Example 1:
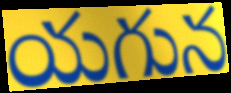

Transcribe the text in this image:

యగున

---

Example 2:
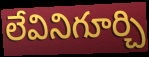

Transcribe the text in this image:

లేవినిగూర్చి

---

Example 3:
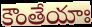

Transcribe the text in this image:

కౌంతేయాః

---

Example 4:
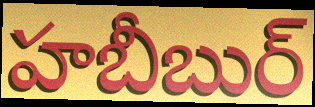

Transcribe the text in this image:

హబీబుర్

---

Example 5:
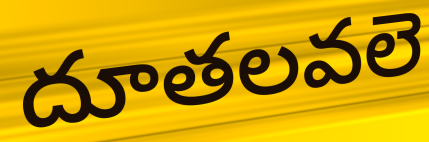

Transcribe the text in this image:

దూతలవలె